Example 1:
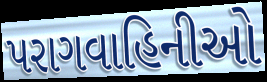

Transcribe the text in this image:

પરાગવાહિનીઓ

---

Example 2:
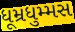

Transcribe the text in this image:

ધૂમ્રધુમ્મસ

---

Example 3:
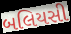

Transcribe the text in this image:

બલિયસી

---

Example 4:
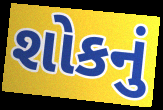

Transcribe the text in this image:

શોકનું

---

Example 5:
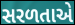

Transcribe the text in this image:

સરળતાએ